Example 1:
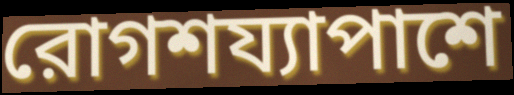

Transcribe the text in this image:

রোগশয্যাপাশে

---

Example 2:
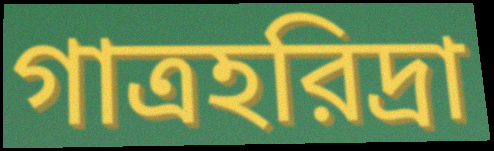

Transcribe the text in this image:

গাত্রহরিদ্রা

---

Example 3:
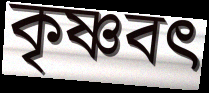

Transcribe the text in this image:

কৃষ্ণবৎ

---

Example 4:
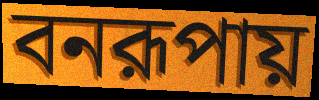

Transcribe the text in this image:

বনরূপায়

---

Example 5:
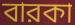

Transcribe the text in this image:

বারকা